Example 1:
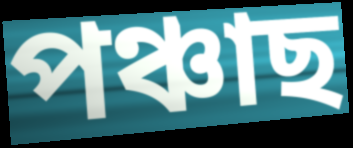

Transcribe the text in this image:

পঞ্চাছ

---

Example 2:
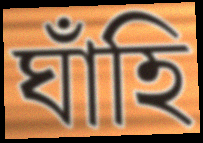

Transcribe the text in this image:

ঘাঁহি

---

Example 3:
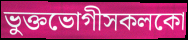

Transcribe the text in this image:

ভুক্তভোগীসকলকো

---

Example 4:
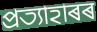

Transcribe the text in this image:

প্ৰত্যাহাৰৰ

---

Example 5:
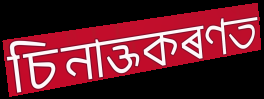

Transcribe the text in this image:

চিনাক্তকৰণত